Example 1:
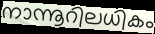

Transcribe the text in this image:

നാന്നൂറിലധികം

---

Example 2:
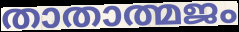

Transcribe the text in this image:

താതാത്മജം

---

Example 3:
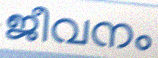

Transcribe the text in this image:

ജീവനം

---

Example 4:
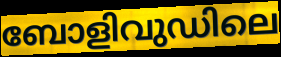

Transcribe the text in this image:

ബോളിവുഡിലെ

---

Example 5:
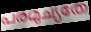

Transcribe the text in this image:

പരമുച്യതേ